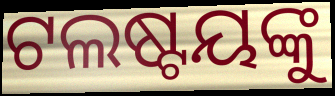
ଟଲଷ୍ଟୟଙ୍କୁ